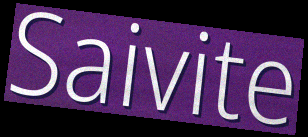
Saivite